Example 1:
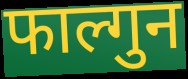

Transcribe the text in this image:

फाल्गुन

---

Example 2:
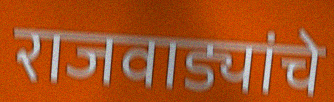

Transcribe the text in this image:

राजवाड्यांचे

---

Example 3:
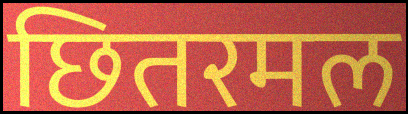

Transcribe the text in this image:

छितरमल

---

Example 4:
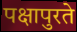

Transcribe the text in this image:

पक्षापुरते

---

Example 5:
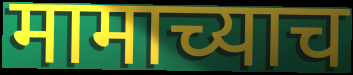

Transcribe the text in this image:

मामाच्याच